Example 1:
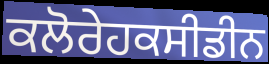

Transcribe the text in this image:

ਕਲੋਰੇਹਕਸੀਡੀਨ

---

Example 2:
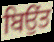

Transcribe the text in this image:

ਬਿਉਂਤ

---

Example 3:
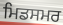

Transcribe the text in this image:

ਮਿਡਸਮਰ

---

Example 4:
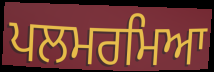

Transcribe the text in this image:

ਪਲਮਰਮਿਆ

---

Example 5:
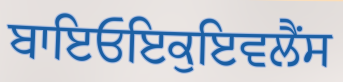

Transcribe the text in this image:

ਬਾਇਓਇਕੁਇਵਲੈਂਸ